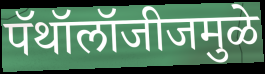
पॅथॉलॉजीजमुळे